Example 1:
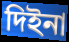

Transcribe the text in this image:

দিইনা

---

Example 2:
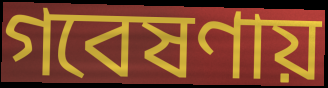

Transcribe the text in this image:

গবেষণায়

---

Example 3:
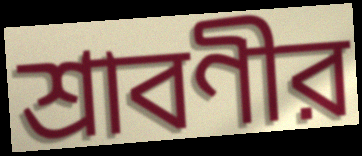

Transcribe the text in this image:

শ্রাবণীর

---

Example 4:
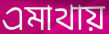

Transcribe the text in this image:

এমাথায়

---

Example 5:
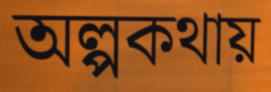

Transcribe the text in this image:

অল্পকথায়